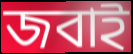
জবাই